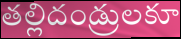
తల్లిదండ్రులకూ